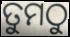
ତୁମଠୁ